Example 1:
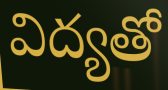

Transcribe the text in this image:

విద్యతో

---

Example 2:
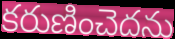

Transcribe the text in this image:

కరుణించెదను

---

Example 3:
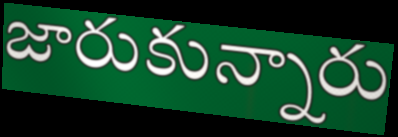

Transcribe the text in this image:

జారుకున్నారు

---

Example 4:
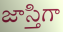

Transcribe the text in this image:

జాస్తిగా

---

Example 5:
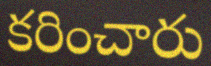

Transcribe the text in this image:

కరించారు